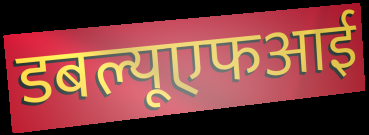
डबल्यूएफआई